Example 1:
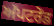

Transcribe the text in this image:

ਅੱਪਟਰੇਂਡ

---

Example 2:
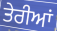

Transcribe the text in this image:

ਤੇਰੀਆਂ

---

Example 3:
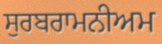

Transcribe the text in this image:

ਸੁਰਬਰਾਮਨੀਅਮ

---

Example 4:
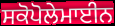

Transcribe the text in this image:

ਸਕੋਪੋਲੇਮਾਈਨ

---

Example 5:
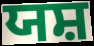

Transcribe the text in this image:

ਯਸ਼